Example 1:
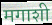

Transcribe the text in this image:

मगाशी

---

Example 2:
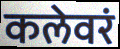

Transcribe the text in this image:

कलेवरं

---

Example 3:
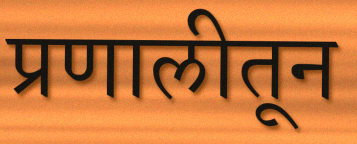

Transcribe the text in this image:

प्रणालीतून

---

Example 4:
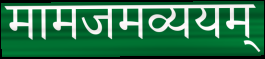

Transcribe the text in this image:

मामजमव्ययम्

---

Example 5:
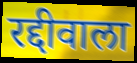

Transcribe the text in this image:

रद्दीवाला